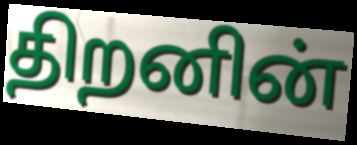
திறனின்